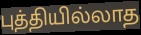
புத்தியில்லாத